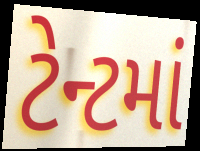
ટેન્ટમાં